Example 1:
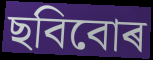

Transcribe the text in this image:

ছবিবোৰ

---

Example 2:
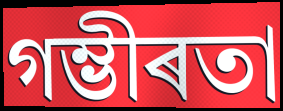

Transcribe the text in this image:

গম্ভীৰতা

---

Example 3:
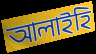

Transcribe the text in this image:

আলাইহি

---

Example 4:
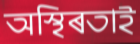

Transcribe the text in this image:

অস্থিৰতাই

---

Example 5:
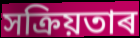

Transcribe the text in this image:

সক্ৰিয়তাৰ